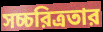
সচ্চরিত্রতার